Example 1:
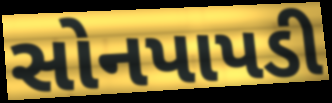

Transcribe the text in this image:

સોનપાપડી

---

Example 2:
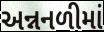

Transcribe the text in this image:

અન્નનળીમાં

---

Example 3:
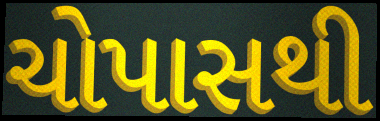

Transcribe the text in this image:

ચોપાસથી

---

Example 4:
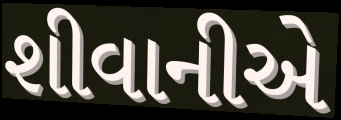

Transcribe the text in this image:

શીવાનીએ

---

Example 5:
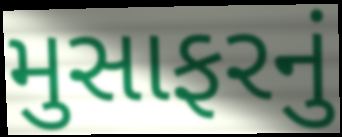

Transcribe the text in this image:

મુસાફરનું